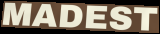
MADEST